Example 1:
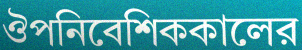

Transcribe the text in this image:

ঔপনিবেশিককালের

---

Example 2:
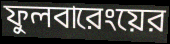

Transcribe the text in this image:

ফুলবারেংয়ের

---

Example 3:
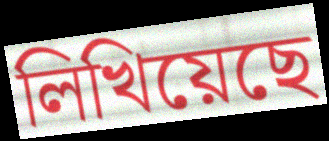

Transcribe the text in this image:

লিখিয়েছে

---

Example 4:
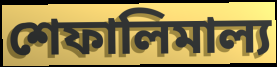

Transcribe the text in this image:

শেফালিমাল্য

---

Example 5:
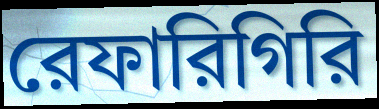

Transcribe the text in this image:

রেফারিগিরি